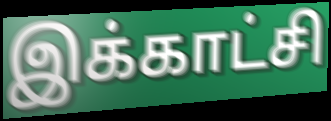
இக்காட்சி